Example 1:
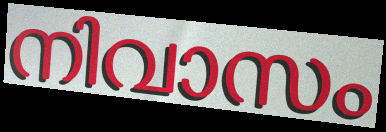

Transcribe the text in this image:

നിവാസം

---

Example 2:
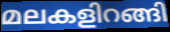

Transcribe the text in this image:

മലകളിറങ്ങി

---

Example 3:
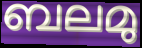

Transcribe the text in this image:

ബലമു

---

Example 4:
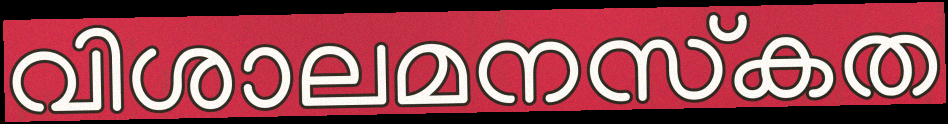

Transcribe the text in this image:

വിശാലമനസ്‌കത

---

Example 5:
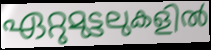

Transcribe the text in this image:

ഏറ്റുമുട്ടലുകളിൽ